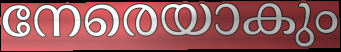
നേരെയാകും